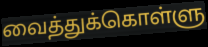
வைத்துக்கொள்ளு